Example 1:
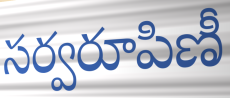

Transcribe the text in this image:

సర్వరూపిణీ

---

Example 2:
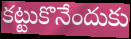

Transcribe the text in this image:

కట్టుకొనేందుకు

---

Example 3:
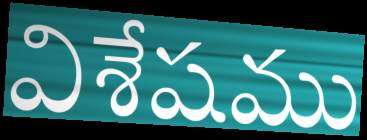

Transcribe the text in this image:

విశేషము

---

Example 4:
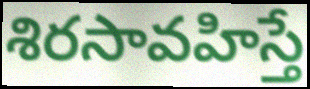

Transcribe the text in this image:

శిరసావహిస్తే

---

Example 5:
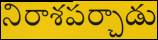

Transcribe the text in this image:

నిరాశపర్చాడు